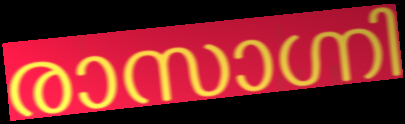
രാസാഗ്നി